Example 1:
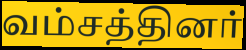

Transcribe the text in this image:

வம்சத்தினர்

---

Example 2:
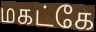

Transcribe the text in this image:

மகட்கே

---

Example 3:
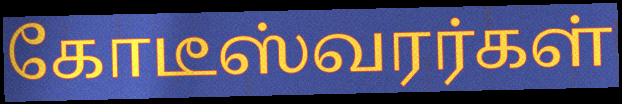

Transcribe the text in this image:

கோடீஸ்வரர்கள்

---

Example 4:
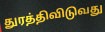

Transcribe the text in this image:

துரத்திவிடுவது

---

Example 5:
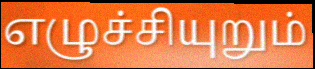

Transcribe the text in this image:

எழுச்சியுறும்